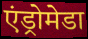
एंड्रोमेडा